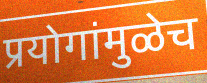
प्रयोगांमुळेच